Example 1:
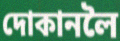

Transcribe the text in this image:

দোকানলৈ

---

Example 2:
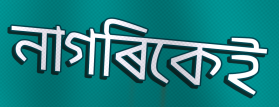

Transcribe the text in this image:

নাগৰিকেই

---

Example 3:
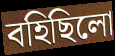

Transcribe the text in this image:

বহিছিলো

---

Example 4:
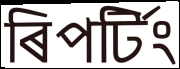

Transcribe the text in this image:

ৰিপৰ্টিং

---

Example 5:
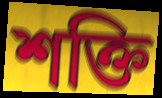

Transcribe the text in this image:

শক্তি